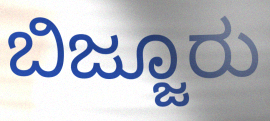
ಬಿಜ್ಜೂರು